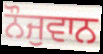
ਨੌਜੁਵਾਨ